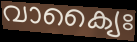
വാക്യൈഃ